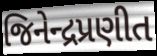
જિનેન્દ્રપ્રણીત